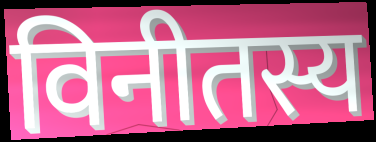
विनीतस्य